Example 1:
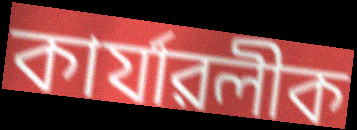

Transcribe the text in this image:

কাৰ্যাৱলীক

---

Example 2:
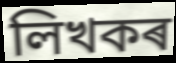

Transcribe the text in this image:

লিখকৰ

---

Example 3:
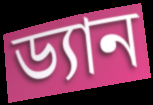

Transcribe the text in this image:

ড্যান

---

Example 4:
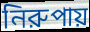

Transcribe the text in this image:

নিৰুপায়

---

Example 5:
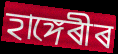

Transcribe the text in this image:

হাঙ্গেৰীৰ